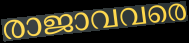
രാജാവവരെ